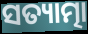
ସତ୍ୟାତ୍ମା